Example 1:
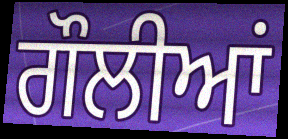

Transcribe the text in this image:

ਗੌਲੀਆਂ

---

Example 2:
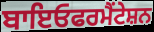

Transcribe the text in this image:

ਬਾਇਓਫਰਮੈਂਟੇਸ਼ਨ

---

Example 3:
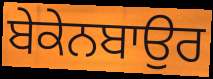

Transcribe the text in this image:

ਬੇਕੇਨਬਾਉਰ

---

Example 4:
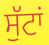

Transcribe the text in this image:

ਸੁੱਟਾਂ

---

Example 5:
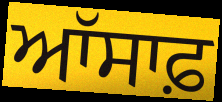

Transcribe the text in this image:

ਆੱਸਾਫ਼